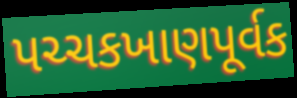
પચ્ચકખાણપૂર્વક